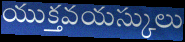
యుక్తవయస్కులు